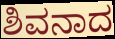
ಶಿವನಾದ